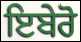
ਇਬੇਰੋ